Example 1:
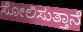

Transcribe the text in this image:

ಸೋಲಿಸುತ್ತಾನೆ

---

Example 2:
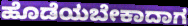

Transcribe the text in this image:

ಹೊಡೆಯಬೇಕಾದಾಗ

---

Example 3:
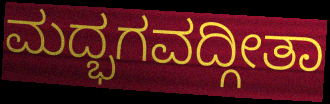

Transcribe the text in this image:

ಮದ್ಭಗವದ್ಗೀತಾ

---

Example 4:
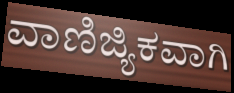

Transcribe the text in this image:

ವಾಣಿಜ್ಯಿಕವಾಗಿ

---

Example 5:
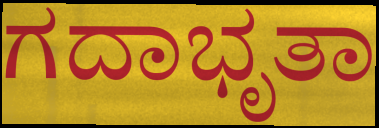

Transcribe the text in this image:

ಗದಾಭೃತಾ